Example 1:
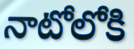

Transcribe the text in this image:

నాటోలోకి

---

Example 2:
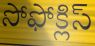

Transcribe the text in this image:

సోఫోక్లిస్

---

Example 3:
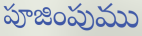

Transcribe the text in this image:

పూజింపుము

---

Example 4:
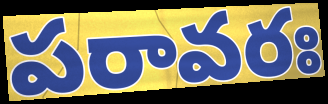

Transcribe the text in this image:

పరావరః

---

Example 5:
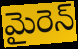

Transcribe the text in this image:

మైరెన్